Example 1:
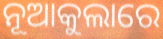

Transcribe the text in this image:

ନୂଆକୁଲାରେ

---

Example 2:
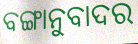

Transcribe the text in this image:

ବଙ୍ଗାନୁବାଦର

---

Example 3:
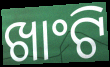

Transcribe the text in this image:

ଖାଂଟି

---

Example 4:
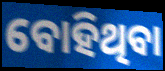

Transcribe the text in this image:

ବୋହିଥିବା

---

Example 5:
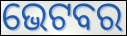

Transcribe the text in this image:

ଭେଟବର